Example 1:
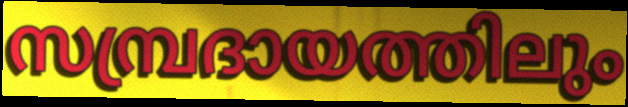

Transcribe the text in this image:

സമ്പ്രദായത്തിലും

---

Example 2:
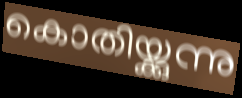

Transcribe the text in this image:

കൊതിയ്ക്കുന്നു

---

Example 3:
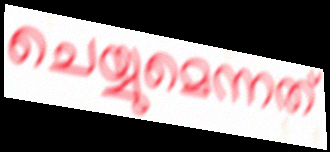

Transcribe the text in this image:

ചെയ്യുമെന്നത്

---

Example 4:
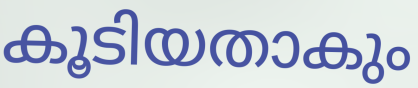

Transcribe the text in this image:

കൂടിയതാകും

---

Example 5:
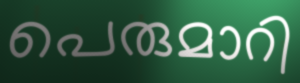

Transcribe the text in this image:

പെരുമാറി